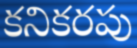
కనికరపు